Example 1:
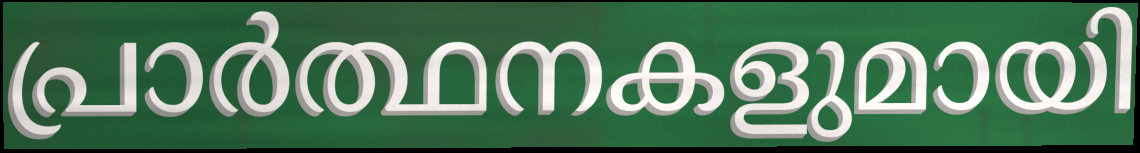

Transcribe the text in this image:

പ്രാർത്ഥനകളുമായി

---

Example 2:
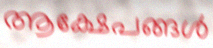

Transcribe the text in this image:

ആക്ഷേപങ്ങൾ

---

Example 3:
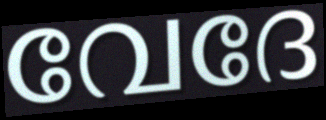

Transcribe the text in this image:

വേദേ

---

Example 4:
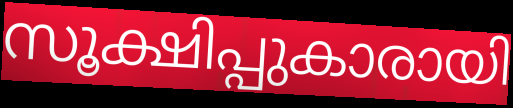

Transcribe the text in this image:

സൂക്ഷിപ്പുകാരായി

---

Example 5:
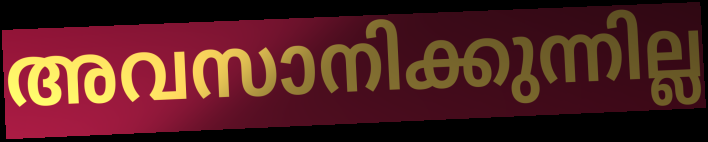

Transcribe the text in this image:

അവസാനിക്കുന്നില്ല